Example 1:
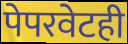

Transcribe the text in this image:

पेपरवेटही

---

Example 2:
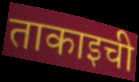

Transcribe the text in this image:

ताकाइची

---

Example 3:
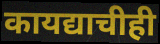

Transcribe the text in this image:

कायद्याचीही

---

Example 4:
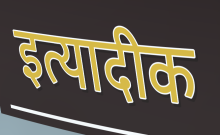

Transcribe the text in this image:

इत्यादीक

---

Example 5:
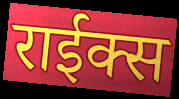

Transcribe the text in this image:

राईक्स